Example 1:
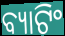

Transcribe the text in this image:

ବ୍ୟାଟିଂ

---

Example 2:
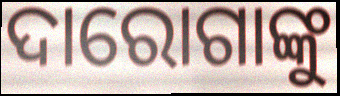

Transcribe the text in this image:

ଦାରୋଗାଙ୍କୁ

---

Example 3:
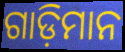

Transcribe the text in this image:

ଗାଡ଼ିମାନ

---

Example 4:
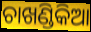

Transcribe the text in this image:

ଚାଖଣ୍ଡିକିଆ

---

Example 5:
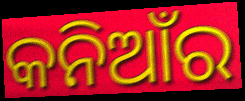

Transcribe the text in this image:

କନିଆଁର